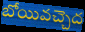
బోయివచ్చెద